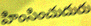
హింసించుదురు